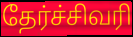
தேர்ச்சிவரி